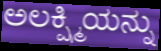
ಅಲಕ್ಷ್ಮಿಯನ್ನು